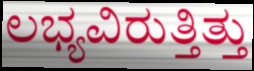
ಲಭ್ಯವಿರುತ್ತಿತ್ತು